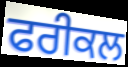
ਫਰੀਕਲ